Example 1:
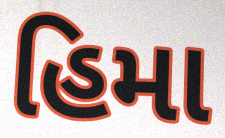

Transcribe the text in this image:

હિમા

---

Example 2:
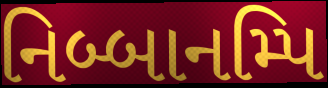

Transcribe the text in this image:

નિબ્બાનમ્પિ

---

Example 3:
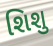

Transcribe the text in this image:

શિશુ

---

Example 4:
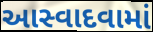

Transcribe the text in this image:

આસ્વાદવામાં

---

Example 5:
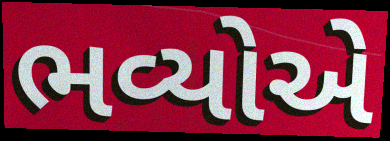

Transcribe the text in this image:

ભવ્યોએ